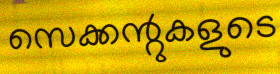
സെക്കന്റുകളുടെ